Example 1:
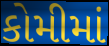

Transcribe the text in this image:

કોમીમાં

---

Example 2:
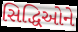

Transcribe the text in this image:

સિદ્ધિઓને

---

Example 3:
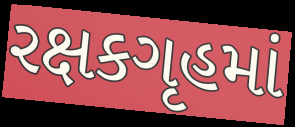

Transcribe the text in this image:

રક્ષકગૃહમાં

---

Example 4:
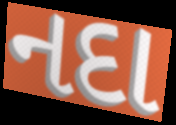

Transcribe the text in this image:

નદા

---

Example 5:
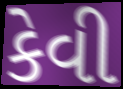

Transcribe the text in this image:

કેવી